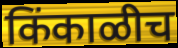
किंकाळीच